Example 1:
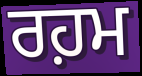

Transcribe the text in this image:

ਰਹ਼ਮ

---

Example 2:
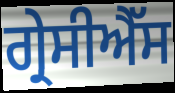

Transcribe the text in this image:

ਗ੍ਰੇਸੀਐੱਸ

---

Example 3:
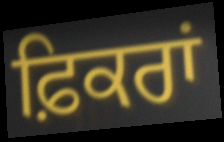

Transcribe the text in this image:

ਫ਼ਿਕਰਾਂ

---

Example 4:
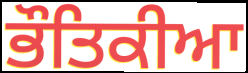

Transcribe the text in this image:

ਭੌਤਿਕੀਆ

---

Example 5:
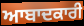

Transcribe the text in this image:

ਆਬਾਦਕਾਰੀ